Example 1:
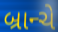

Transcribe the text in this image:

બ્રાન્ચે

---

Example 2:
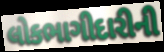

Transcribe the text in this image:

લોકભાગીદારીની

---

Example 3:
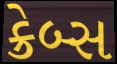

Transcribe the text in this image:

ક્રેબ્સ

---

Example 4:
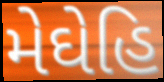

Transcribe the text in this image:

મેઘેહિ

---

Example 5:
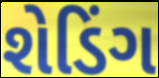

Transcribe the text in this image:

શેડિંગ